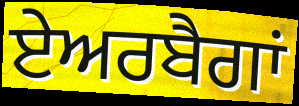
ਏਅਰਬੈਗਾਂ